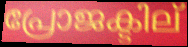
പ്രോജക്ടില്